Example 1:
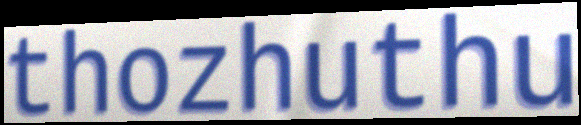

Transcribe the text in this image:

thozhuthu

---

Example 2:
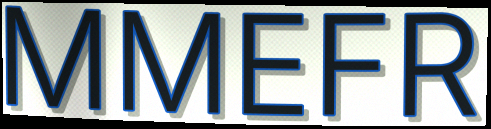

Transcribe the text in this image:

MMEFR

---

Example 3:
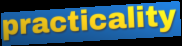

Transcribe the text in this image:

practicality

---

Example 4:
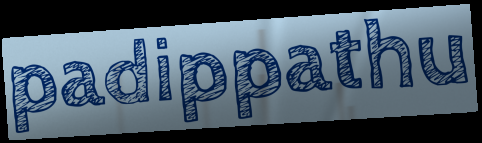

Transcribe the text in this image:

padippathu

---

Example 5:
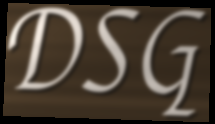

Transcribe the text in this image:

DSG